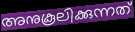
അനുകൂലിക്കുന്നത്